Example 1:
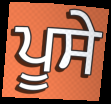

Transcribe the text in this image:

ਪੂਸੇ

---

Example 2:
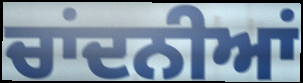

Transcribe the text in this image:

ਚਾਂਦਨੀਆਂ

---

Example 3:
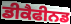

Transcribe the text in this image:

ਡੀਕੈਫੀਨਡ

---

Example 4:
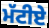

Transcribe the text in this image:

ਮੱਟੀਏ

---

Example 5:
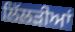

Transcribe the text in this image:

ਲਿੱਲੜੀਆਂ